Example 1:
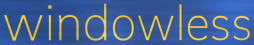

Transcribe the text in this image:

windowless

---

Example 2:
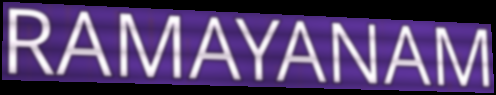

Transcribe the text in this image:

RAMAYANAM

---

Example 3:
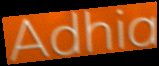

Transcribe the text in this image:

Adhia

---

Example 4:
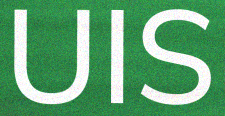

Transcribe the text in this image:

UIS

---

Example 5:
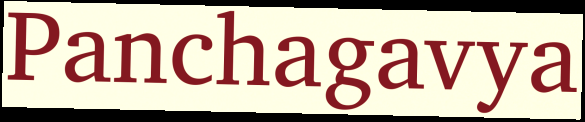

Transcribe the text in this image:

Panchagavya